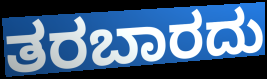
ತರಬಾರದು